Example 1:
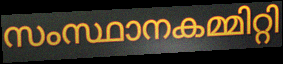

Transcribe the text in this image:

സംസ്ഥാനകമ്മിറ്റി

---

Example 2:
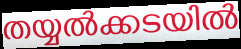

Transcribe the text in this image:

തയ്യൽക്കടയിൽ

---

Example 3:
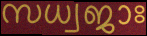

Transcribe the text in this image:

സധ്വജാഃ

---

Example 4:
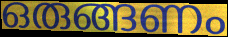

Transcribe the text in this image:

ഒരുങ്ങണം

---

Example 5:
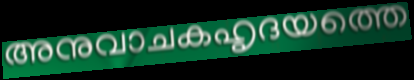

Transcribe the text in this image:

അനുവാചകഹൃദയത്തെ